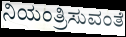
ನಿಯಂತ್ರಿಸುವಂತೆ